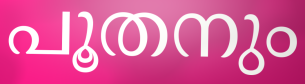
പൂതനും